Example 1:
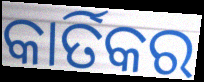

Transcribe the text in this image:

କାର୍ତିକର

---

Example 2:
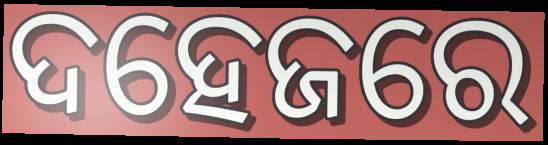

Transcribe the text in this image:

ଦହେଜରେ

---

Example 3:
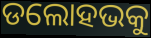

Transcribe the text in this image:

ଡଲୋହଭକୁ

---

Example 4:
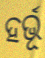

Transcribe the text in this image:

ହର୍ଭୂ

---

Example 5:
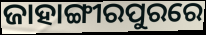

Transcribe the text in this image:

ଜାହାଙ୍ଗୀରପୁରରେ